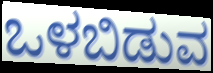
ಒಳಬಿಡುವ